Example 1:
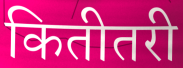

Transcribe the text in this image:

कितीतरी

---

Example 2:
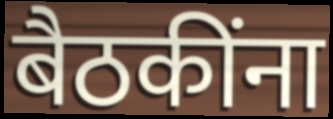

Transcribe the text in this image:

बैठकींना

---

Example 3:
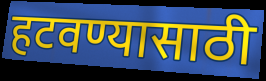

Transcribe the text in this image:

हटवण्यासाठी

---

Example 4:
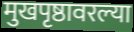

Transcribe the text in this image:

मुखपृष्ठावरल्या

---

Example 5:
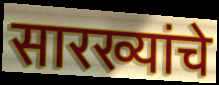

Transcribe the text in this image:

सारख्यांचे